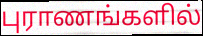
புராணங்களில்